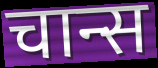
चान्स